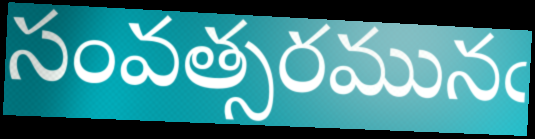
సంవత్సరమునఁ